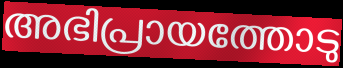
അഭിപ്രായത്തോടു